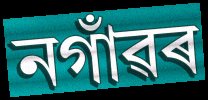
নগাঁৱৰ